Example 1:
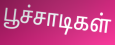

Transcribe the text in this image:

பூச்சாடிகள்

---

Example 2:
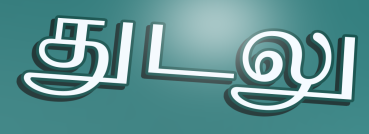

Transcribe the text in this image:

துடலு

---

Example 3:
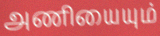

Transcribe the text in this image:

அணியையும்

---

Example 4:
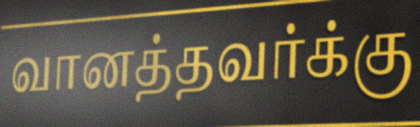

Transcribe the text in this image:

வானத்தவர்க்கு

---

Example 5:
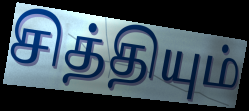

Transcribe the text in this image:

சித்தியும்